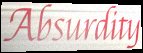
Absurdity